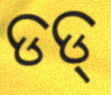
ଡଡ୍